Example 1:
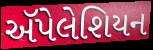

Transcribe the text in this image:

ઍપેલેશિયન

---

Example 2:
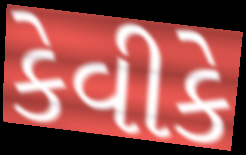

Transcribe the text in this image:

કેવીકે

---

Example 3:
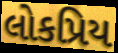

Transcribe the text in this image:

લોકપ્રિય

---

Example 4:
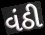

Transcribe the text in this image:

વંઠી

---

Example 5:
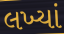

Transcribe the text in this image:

લખ્યાં